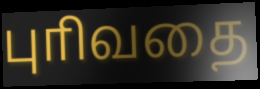
புரிவதை